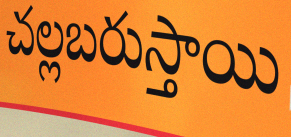
చల్లబరుస్తాయి